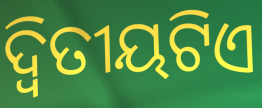
ଦ୍ୱିତୀୟଟିଏ